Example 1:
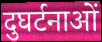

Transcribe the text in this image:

दुघर्टनाओं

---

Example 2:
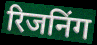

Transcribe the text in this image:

रिजनिंग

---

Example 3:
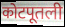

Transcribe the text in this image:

कोटपूतली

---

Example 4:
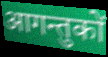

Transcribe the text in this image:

आगन्तुकों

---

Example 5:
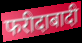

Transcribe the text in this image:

फरीदाबादी